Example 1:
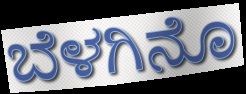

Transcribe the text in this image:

ಬೆಳಗಿನೊ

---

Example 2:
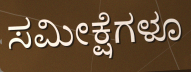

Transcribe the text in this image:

ಸಮೀಕ್ಷೆಗಳೂ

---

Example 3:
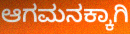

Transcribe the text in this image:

ಆಗಮನಕ್ಕಾಗಿ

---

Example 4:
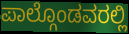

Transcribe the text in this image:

ಪಾಲ್ಗೊಂಡವರಲ್ಲಿ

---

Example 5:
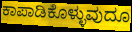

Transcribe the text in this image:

ಕಾಪಾಡಿಕೊಳ್ಳುವುದೂ